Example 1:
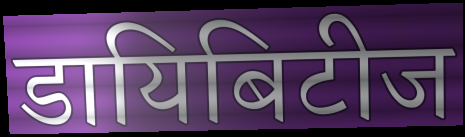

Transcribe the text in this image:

डायिबिटीज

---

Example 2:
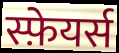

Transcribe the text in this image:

स्फ़ेयर्स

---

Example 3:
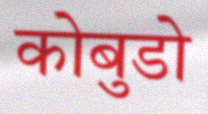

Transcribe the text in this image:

कोबुडो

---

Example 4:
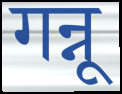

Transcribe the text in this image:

गन्नू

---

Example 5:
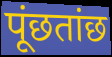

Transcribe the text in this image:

पूंछतांछ